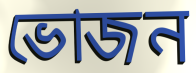
ভোজন